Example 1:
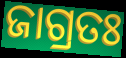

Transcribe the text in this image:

ଜାଗ୍ରତଃ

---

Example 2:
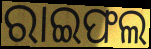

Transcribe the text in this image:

ରାଇଫଲ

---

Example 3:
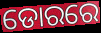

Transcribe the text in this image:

ଡୋରରେ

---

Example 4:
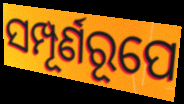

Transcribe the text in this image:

ସମ୍ପୂର୍ଣରୂପେ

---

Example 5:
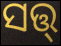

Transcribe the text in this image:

ସତ୍ତ୍